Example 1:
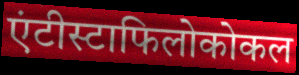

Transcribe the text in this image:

एंटीस्टाफिलोकोकल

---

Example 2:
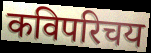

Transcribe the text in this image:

कविपरिचय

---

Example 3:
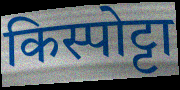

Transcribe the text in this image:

किस्पोट्टा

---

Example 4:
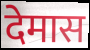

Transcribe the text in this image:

देमास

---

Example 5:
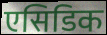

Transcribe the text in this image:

एसिडिक